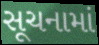
સૂચનામાં